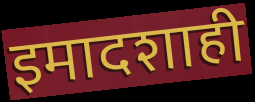
इमादशाही